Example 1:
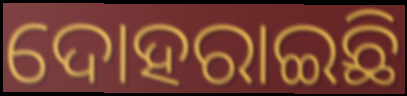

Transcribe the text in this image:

ଦୋହରାଇଛି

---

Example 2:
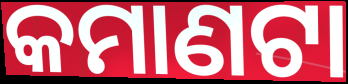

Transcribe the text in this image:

କମାଣଟା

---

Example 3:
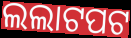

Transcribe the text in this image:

ଲଲାଟପଟ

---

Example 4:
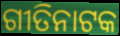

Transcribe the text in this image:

ଗୀତିନାଟକ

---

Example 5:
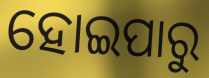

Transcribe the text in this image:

ହୋଇପାରୁ